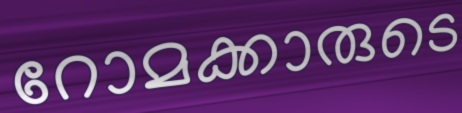
റോമക്കാരുടെ